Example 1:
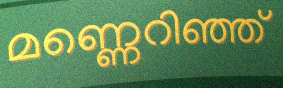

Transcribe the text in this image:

മണ്ണെറിഞ്ഞ്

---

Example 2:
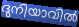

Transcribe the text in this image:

ദുനിയാവിൽ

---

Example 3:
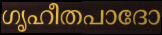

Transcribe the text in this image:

ഗൃഹീതപാദോ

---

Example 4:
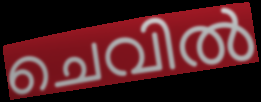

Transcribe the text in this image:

ചെവിൽ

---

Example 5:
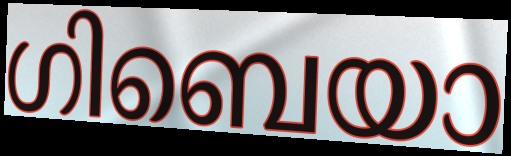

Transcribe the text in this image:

ഗിബെയാ